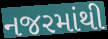
નજરમાંથી